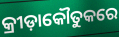
କ୍ରୀଡ଼ାକୌତୁକରେ